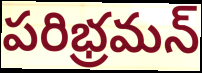
పరిభ్రమన్